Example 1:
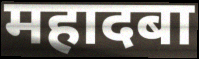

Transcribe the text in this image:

महादबा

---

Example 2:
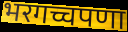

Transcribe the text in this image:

भरगच्चपणा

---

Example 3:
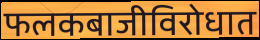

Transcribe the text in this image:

फलकबाजीविरोधात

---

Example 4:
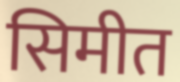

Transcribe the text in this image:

सिमीत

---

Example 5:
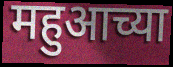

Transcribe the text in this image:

महुआच्या